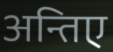
अन्तिए